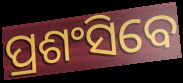
ପ୍ରଶଂସିବେ